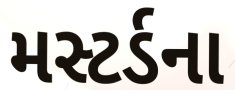
મસ્ટર્ડના